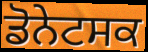
ਡੋਨੇਟਸਕ